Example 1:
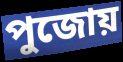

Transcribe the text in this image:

পুজোয়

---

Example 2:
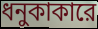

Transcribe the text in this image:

ধনুকাকারে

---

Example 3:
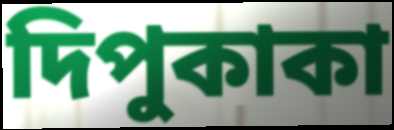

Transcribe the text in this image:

দিপুকাকা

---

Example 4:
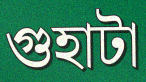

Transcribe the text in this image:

গুহাটা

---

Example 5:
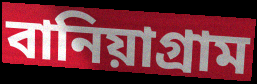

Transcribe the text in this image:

বানিয়াগ্রাম